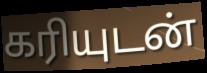
கரியுடன்